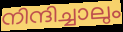
നിന്ദിച്ചാലും